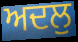
ਅਦਲੁ